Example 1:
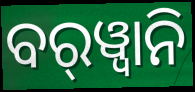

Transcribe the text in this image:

ବର୍‍ୱ୍ୱାନି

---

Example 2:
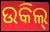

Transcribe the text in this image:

ଉକିଲ୍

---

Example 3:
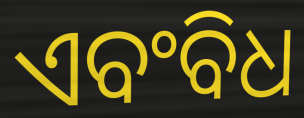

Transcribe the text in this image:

ଏବଂବିଧ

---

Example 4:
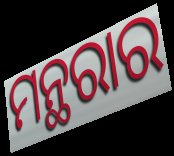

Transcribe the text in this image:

ମନ୍ଥରାର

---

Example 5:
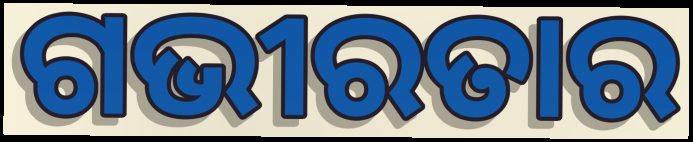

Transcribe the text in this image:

ଗଭୀରତାର